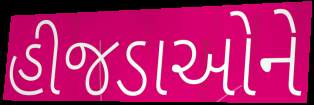
હીજડાઓને